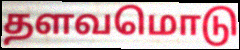
தளவமொடு